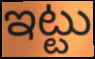
ఇట్టు